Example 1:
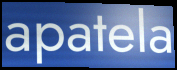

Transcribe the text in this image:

apatela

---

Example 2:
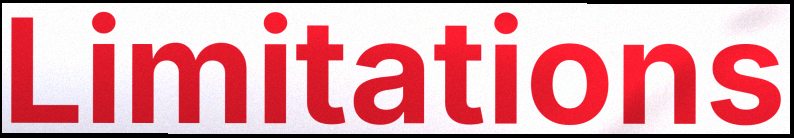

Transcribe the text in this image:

Limitations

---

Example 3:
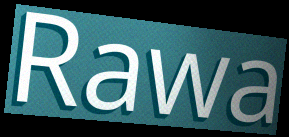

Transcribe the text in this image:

Rawa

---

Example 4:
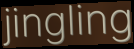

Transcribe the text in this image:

jingling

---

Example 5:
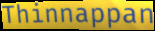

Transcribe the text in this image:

Thinnappan